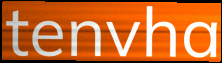
tenvha